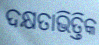
ଦକ୍ଷତାଭିତ୍ତିକ